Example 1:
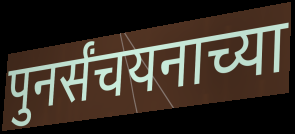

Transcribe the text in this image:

पुनर्संचयनाच्या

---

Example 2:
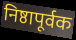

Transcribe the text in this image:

निष्ठापूर्वक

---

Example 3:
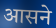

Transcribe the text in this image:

आसने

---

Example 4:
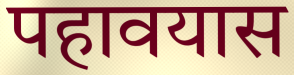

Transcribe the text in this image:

पहावयास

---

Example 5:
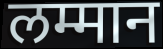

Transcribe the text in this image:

लम्मान